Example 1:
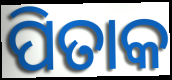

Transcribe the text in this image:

ପିତାକ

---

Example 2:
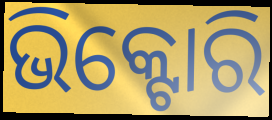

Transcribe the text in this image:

ଭିକ୍ଟୋରି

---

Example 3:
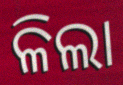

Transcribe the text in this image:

ଳିଲା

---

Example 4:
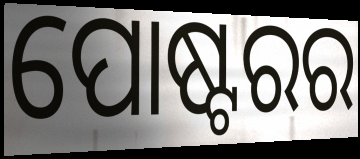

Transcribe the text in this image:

ପୋଷ୍ଟରର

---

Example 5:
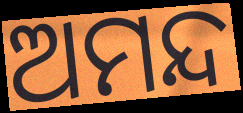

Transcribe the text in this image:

ଅମନ୍ଦ